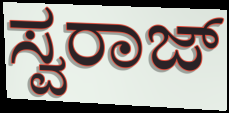
ಸ್ವರಾಜ್